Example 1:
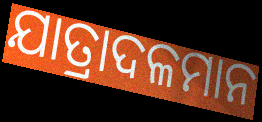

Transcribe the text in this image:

ଯାତ୍ରାଦଳମାନ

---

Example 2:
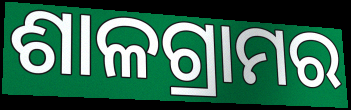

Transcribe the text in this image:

ଶାଳଗ୍ରାମର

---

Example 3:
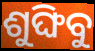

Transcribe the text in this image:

ଶୁଙ୍ଘିବୁ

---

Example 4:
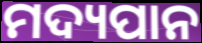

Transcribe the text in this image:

ମଦ୍ୟପାନ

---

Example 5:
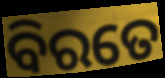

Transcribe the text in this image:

ବିରତେ